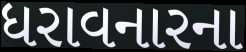
ધરાવનારના